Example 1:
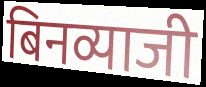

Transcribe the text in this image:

बिनव्याजी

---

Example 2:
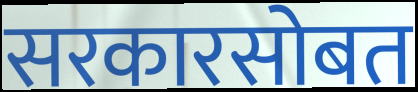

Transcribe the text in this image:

सरकारसोबत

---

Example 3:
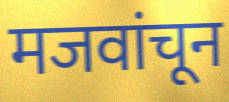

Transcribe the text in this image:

मजवांचून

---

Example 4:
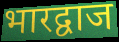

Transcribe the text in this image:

भारद्वाज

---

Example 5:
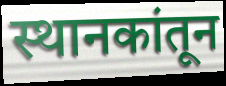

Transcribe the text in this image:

स्थानकांतून